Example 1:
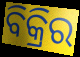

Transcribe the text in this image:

ବିକ୍ରିର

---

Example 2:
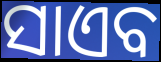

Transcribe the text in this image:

ସାଏବ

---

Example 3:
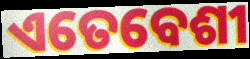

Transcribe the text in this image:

ଏତେବେଶୀ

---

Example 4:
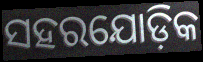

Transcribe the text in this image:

ସହରଯୋଡ଼ିକ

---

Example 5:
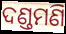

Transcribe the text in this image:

ଦଣ୍ଡମଣି